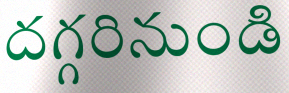
దగ్గరినుండి